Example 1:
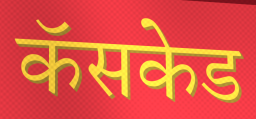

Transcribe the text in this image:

कॅसकेड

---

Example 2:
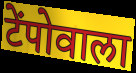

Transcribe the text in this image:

टेंपोवाला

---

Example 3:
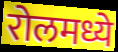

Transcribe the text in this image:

रोलमध्ये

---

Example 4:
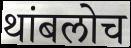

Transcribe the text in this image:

थांबलोच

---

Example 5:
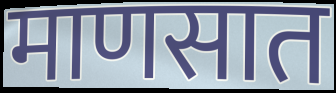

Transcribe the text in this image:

माणसात